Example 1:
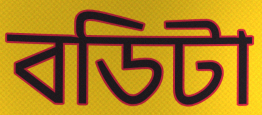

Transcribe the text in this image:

বডিটা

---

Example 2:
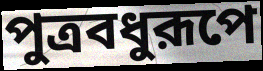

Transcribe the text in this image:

পুত্রবধুরূপে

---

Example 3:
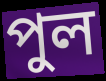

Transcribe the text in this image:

পুল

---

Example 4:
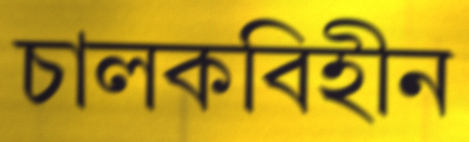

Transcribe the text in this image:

চালকবিহীন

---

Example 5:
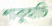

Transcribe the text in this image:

শাকুহাচি